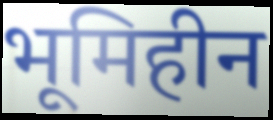
भूमिहीन